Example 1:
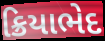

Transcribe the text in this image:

ક્રિયાભેદ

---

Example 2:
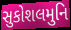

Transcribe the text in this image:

સુકોશલમુનિ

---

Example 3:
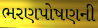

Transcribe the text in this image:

ભરણપોષણની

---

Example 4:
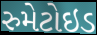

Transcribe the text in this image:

રુમેટોઇડ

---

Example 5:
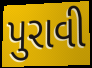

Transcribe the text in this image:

પુરાવી